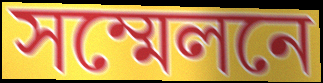
সম্মেলনে